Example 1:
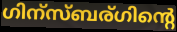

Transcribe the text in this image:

ഗിന്സ്ബര്ഗിന്റെ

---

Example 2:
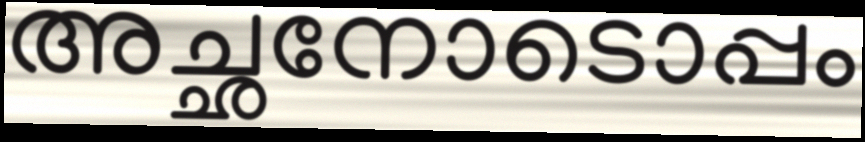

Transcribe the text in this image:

അച്ഛനോടൊപ്പം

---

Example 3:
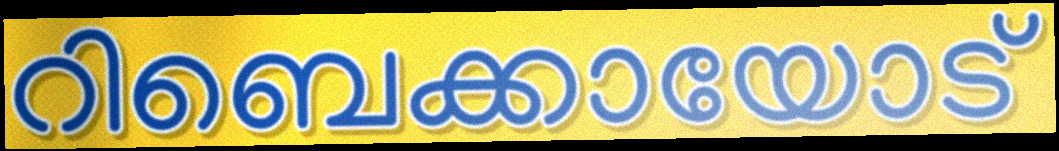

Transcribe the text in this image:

റിബെക്കായോട്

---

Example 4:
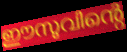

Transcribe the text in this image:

ഈസുവിന്റെ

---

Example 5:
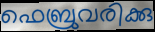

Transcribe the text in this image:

ഫെബ്രുവരിക്കു